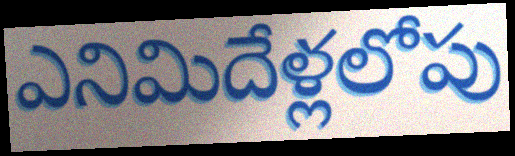
ఎనిమిదేళ్లలోపు